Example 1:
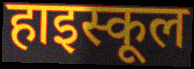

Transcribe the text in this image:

हाइस्कूल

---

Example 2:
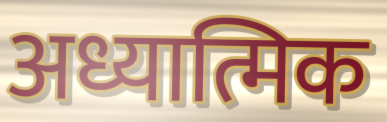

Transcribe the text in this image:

अध्यात्मिक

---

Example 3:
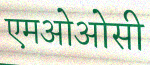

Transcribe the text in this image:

एमओओसी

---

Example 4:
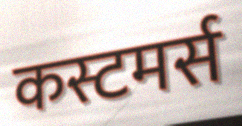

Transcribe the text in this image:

कस्‍टमर्स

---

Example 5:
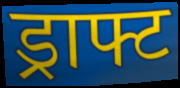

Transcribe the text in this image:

ड्राफ्ट